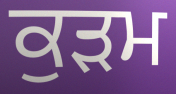
ਕੁੜਮ